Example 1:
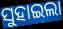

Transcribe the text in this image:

ସୁହାଇଲା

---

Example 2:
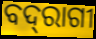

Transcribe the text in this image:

ବଦ୍‌ରାଗୀ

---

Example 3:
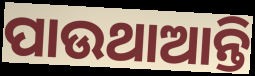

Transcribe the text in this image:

ପାଉଥାଆନ୍ତି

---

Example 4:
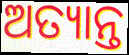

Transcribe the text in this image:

ଅତ୍ୟାନ୍ତ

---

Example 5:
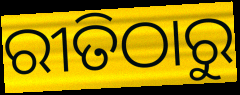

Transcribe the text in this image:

ରୀତିଠାରୁ